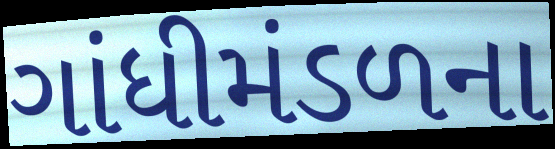
ગાંધીમંડળના